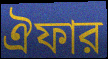
ঐফার